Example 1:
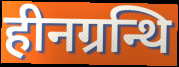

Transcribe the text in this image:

हीनग्रन्थि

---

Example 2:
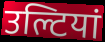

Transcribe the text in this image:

उल्‍टियां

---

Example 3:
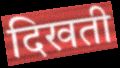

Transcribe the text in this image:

दिखती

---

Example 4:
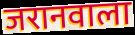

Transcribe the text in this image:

जरानवाला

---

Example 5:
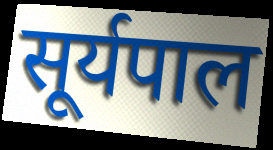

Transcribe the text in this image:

सूर्यपाल